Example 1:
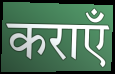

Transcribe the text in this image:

कराएँ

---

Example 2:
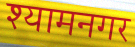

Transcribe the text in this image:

श्यामनगर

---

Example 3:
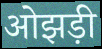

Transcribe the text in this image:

ओझड़ी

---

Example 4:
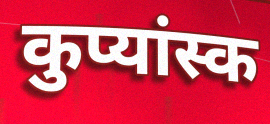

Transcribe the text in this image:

कुप्यांस्क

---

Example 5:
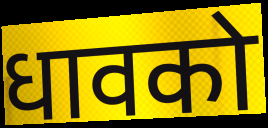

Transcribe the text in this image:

धावको